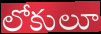
లోకులూ